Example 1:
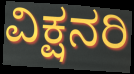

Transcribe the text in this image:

ವಿಕ್ಷನರಿ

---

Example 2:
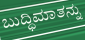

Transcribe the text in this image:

ಬುದ್ಧಿಮಾತನ್ನು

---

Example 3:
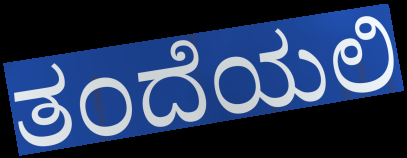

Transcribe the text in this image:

ತಂದೆಯಲಿ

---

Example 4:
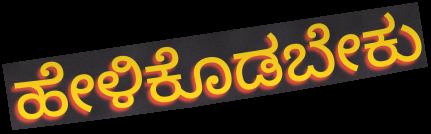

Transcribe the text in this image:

ಹೇಳಿಕೊಡಬೇಕು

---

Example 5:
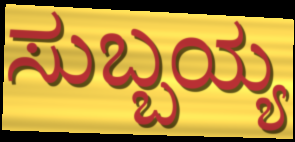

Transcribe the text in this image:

ಸುಬ್ಬಯ್ಯ